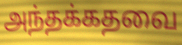
அந்தக்கதவை